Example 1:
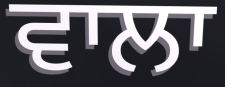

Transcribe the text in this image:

ਵਾਲਾ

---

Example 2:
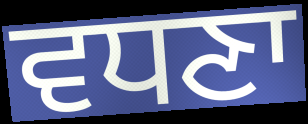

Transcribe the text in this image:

ਵਧਣਾ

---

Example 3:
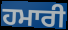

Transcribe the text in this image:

ਹਮਾਰੀ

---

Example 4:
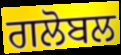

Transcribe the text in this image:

ਗਲੋਬਲ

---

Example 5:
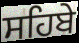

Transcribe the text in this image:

ਸਹਿਬੇ